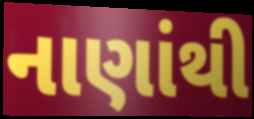
નાણાંથી